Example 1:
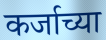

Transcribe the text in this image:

कर्जाच्या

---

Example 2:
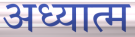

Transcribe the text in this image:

अध्यात्म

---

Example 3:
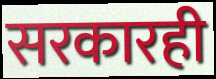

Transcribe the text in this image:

सरकारही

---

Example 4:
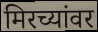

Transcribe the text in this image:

मिरच्यांवर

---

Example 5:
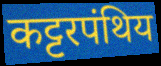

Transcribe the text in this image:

कट्टरपंथिय